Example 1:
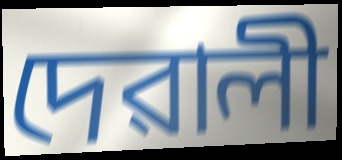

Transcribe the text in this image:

দেৱালী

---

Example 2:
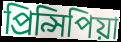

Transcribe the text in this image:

প্ৰিন্সিপিয়া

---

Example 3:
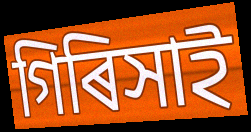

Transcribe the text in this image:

গিৰিসাই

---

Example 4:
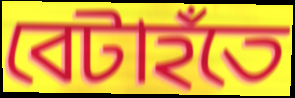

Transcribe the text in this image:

বেটাহঁতে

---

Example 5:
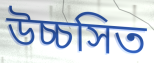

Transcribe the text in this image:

উচ্চসিত